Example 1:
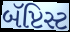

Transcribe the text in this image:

બૅપ્ટિસ્ટ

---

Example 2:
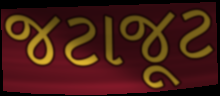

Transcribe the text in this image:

જટાજૂટ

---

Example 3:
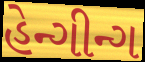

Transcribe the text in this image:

હેન્ગીન્ગ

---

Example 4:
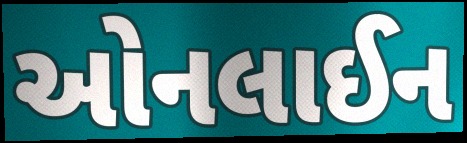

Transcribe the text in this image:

ઓનલાઈન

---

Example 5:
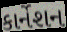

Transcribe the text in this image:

કાર્નેશન